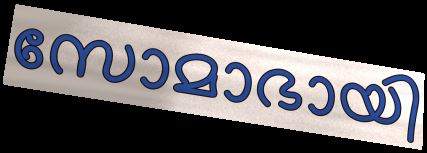
സോമാഭായി